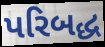
પરિબદ્ધ